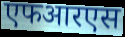
एफआरएस